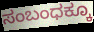
ಸಂಬಂಧಕ್ಕೂ